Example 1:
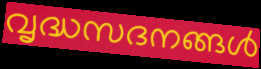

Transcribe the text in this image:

വൃദ്ധസദനങ്ങൾ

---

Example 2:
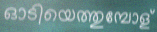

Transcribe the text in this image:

ഓടിയെത്തുമ്പോള്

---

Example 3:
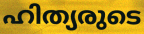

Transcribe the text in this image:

ഹിത്യരുടെ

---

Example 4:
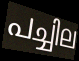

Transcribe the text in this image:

പച്ചില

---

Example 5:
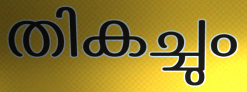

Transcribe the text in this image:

തികച്ചും